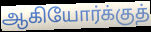
ஆகியோர்க்குத்